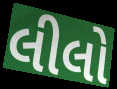
લીલો